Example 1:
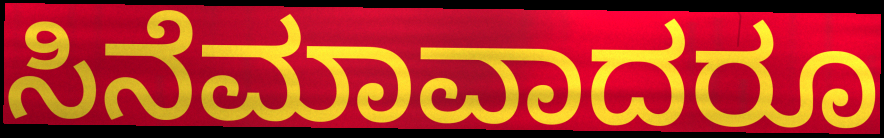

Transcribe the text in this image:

ಸಿನೆಮಾವಾದರೂ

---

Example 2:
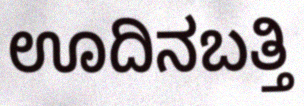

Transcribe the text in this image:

ಊದಿನಬತ್ತಿ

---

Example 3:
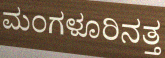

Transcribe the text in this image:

ಮಂಗಳೂರಿನತ್ತ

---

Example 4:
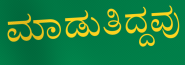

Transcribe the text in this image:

ಮಾಡುತಿದ್ದವು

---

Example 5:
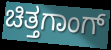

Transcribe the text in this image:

ಚಿತ್ತಗಾಂಗ್